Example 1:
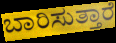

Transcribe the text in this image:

ಬಾರಿಸುತ್ತಾರೆ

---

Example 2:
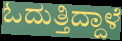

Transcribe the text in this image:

ಓದುತ್ತಿದ್ದಾಳೆ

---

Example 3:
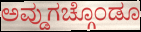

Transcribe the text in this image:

ಅವ್ಡುಗಚ್ಗೊಂಡೂ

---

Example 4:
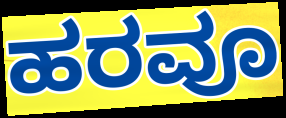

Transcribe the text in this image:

ಹರವೂ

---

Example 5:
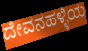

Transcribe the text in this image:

ದೇವನಹಳ್ಳಿಯ